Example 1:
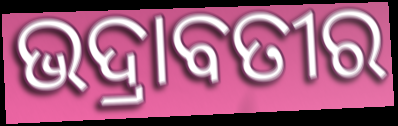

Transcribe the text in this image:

ଭଦ୍ରାବତୀର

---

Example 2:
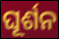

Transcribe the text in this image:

ଘୂର୍ଶନ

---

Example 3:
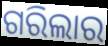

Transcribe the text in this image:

ଗରିଲାର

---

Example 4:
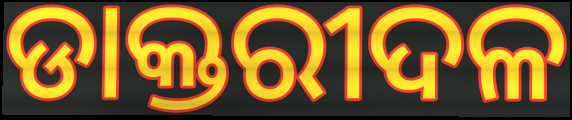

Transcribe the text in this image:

ଡାକ୍ତରୀଦଳ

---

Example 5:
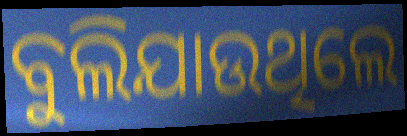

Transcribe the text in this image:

ବୁଲିଯାଉଥିଲେ